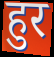
हुर